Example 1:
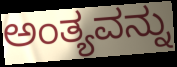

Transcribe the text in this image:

ಅಂತ್ಯವನ್ನು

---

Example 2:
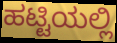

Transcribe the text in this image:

ಹಟ್ಟಿಯಲ್ಲಿ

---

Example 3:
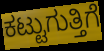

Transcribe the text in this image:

ಕಟ್ಟುಗುತ್ತಿಗೆ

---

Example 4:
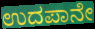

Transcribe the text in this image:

ಉದಪಾನೇ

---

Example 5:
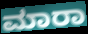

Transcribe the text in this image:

ಮಾರಾ